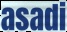
asadi